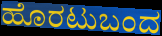
ಹೊರಟುಬಂದ